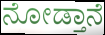
ನೋಡ್ತಾನೆ